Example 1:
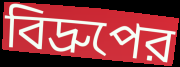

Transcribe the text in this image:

বিদ্রুপের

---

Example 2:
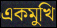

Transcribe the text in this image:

একমুখি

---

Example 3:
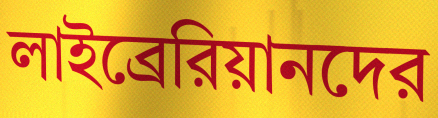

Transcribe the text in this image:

লাইব্রেরিয়ানদের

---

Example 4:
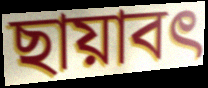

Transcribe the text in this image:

ছায়াবৎ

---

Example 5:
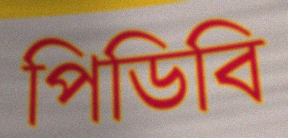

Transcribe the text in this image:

পিডিবি